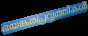
ഭയങ്കരപ്രവൃത്തികൾ